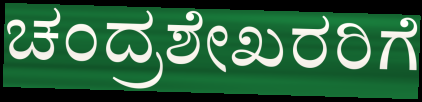
ಚಂದ್ರಶೇಖರರಿಗೆ